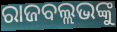
ରାଜବଲ୍ଲଭଙ୍କୁ